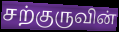
சற்குருவின்